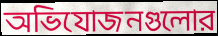
অভিযোজনগুলোর